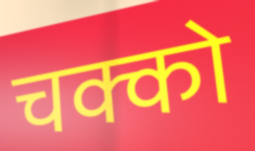
चक्को